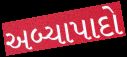
અબ્યાપાદો